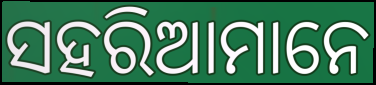
ସହରିଆମାନେ